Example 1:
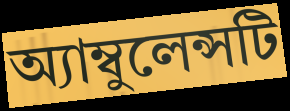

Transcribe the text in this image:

অ্যাম্বুলেন্সটি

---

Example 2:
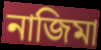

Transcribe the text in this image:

নাজিমা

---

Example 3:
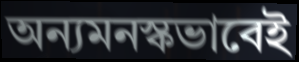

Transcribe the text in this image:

অন্যমনস্কভাবেই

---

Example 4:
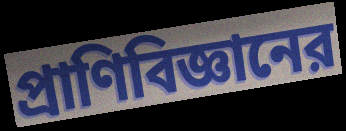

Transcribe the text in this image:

প্রাণিবিজ্ঞানের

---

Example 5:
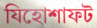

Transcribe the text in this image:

যিহোশাফট